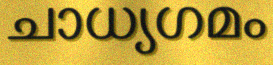
ചാധ്യഗമം